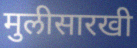
मुलीसारखी